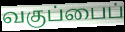
வகுப்பைப்